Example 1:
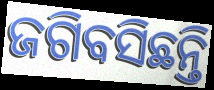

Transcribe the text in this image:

ଜଗିବସିଛନ୍ତି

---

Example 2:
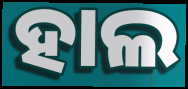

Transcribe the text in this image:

ହାଲ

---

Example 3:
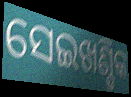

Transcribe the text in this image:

ସେଇଖଣ୍ଡିକ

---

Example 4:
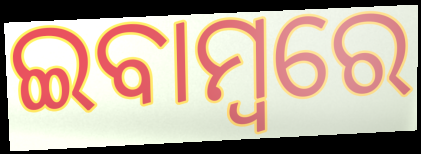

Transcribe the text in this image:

ଇବାମ୍ବରେ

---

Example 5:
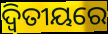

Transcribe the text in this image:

ଦ୍ୱିତୀୟରେ